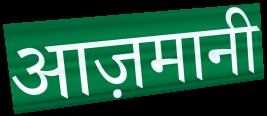
आज़मानी